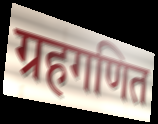
ग्रहगणित